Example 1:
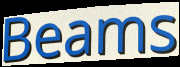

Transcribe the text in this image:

Beams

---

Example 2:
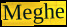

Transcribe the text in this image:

Meghe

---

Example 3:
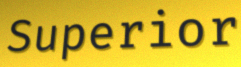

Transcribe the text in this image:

Superior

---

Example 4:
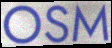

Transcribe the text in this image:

OSM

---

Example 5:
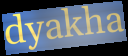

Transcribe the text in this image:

dyakha